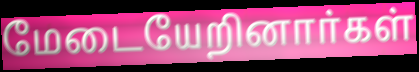
மேடையேறினார்கள்